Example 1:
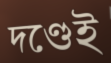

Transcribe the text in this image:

দণ্ডেই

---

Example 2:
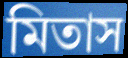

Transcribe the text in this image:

মিতাস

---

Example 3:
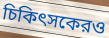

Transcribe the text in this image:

চিকিৎসকেরও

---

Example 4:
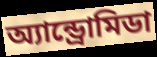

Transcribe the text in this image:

অ্যান্ড্রোমিডা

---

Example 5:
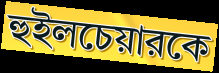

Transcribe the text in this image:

হুইলচেয়ারকে